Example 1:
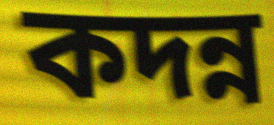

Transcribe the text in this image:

কদন্ন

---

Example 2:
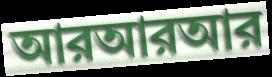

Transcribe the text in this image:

আরআরআর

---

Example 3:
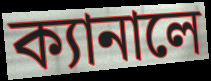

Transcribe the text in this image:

ক্যানালে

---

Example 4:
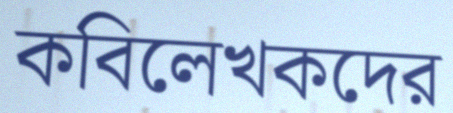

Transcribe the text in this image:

কবিলেখকদের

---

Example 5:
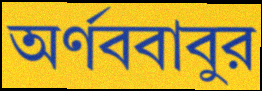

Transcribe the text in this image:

অর্ণববাবুর